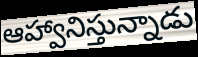
ఆహ్వానిస్తున్నాడు